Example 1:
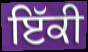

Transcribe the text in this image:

ਇੱਕੀ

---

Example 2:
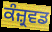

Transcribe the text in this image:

ਕੰਜ਼੍ਰਵਡ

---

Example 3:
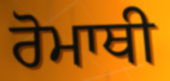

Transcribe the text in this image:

ਰੋਮਾਥੀ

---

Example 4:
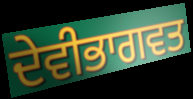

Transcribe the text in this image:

ਦੇਵੀਭਾਗਵਤ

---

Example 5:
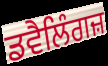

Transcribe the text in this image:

ਡਵੈਲਿੰਗਜ਼